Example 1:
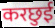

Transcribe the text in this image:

करछुई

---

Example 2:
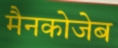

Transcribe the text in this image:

मैनकोजेब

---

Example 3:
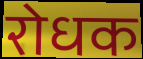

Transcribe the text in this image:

रोधक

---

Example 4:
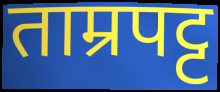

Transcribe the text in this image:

ताम्रपट्ट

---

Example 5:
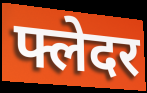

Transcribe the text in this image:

फ्लेदर